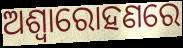
ଅଶ୍ୱାରୋହଣରେ